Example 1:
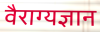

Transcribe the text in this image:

वैराग्यज्ञान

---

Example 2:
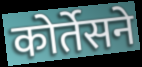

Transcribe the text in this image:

कोर्तेसने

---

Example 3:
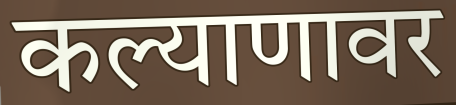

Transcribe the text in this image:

कल्याणावर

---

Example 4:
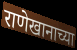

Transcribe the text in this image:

राणेखानाच्या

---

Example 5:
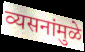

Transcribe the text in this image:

व्यसनांमुळे